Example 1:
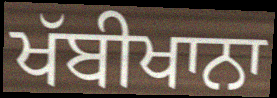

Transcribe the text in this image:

ਖੱਬੀਖਾਨਾ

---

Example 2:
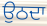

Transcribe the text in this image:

ਉਠਦਾ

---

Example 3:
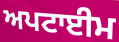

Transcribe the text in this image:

ਅਪਟਾਈਮ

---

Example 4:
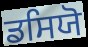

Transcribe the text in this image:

ਡਸਿਯੋ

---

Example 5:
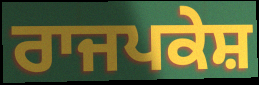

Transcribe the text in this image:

ਰਾਜਪਕੇਸ਼